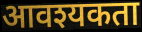
आवश्यकता